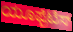
ಯೂಫ್ರೆಟಿಸ್